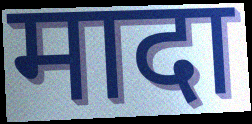
मादा